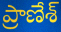
ప్రాణేశ్